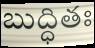
బుద్ధితః